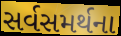
સર્વસમર્થના